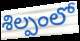
శిల్పంలో